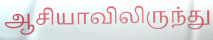
ஆசியாவிலிருந்து